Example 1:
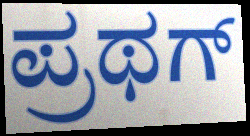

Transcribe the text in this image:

ಪ್ರಥಗ್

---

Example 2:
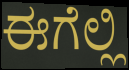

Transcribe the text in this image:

ಈಗೆಲ್ಲಿ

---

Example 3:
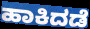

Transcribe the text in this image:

ಹಾಕಿದಡೆ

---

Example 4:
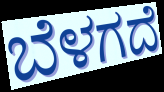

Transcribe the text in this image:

ಬೆಳಗದೆ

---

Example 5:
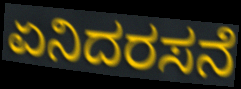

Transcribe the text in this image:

ಏನಿದರಸನೆ